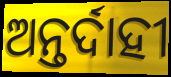
ଅନ୍ତର୍ଦାହୀ